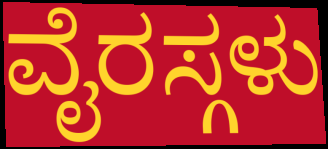
ವೈರಸ್ಗಳು